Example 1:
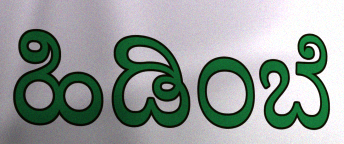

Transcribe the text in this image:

ಹಿಡಿಂಬೆ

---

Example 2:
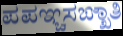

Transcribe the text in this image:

ಪಪಞ್ಚಸಙ್ಖಾತಿ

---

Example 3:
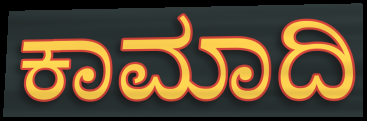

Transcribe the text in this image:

ಕಾಮಾದಿ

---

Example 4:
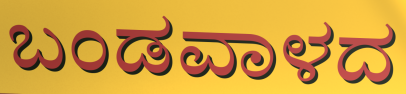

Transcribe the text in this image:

ಬಂಡವಾಳದ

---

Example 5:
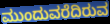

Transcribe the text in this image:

ಮುಂದುವರೆದಿರುವ